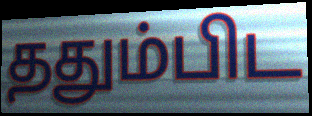
ததும்பிட